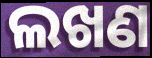
ଲଖଣ